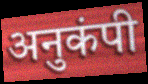
अनुकंपी